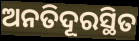
ଅନତିଦୂରସ୍ଥିତ